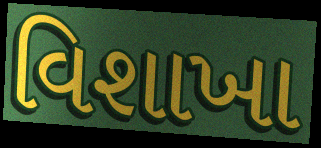
વિશાખા